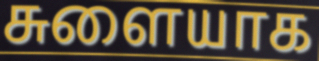
சுளையாக